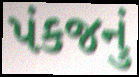
પંકજનું